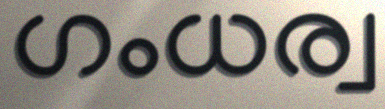
ഗംധര്വ